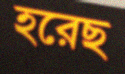
হরেছ